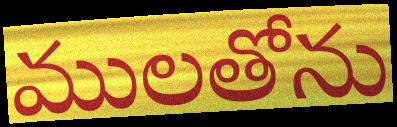
ములతోను